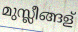
മുസ്ലീങ്ങള്